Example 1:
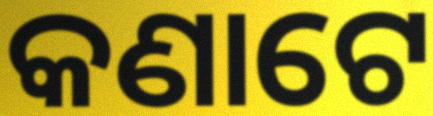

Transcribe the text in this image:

କଣାଟେ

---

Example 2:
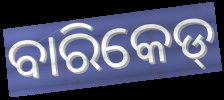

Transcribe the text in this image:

ବାରିକେଡ୍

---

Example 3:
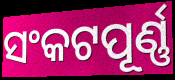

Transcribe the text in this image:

ସଂକଟପୂର୍ଣ୍ଣ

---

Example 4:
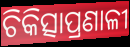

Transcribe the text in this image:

ଚିକିତ୍ସାପ୍ରଣାଳୀ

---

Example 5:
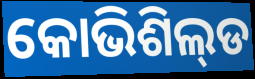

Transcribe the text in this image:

କୋଭିଶିଲ୍‌ଡ